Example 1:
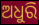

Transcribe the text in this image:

ଅଧୁରି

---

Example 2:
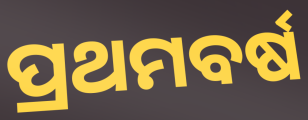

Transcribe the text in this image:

ପ୍ରଥମବର୍ଷ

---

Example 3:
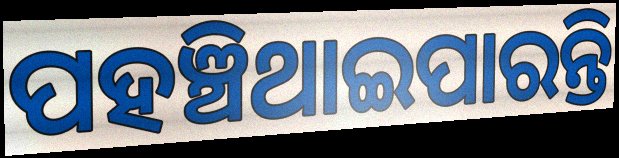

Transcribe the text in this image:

ପହଞ୍ଚିଥାଇପାରନ୍ତି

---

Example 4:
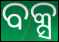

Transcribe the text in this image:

ବକ୍ସ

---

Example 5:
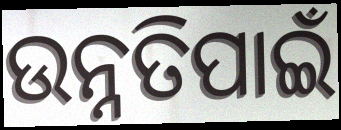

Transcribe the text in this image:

ଉନ୍ନତିପାଇଁ